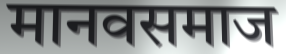
मानवसमाज